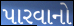
પારવાનો